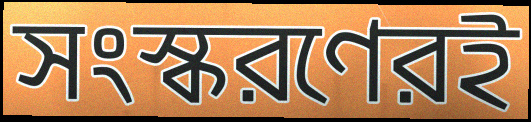
সংস্করণেরই